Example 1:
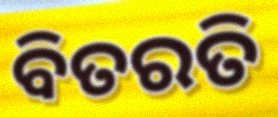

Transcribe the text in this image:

ବିତରତି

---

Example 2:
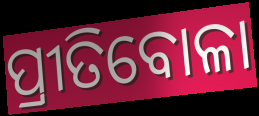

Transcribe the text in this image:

ପ୍ରୀତିବୋଳା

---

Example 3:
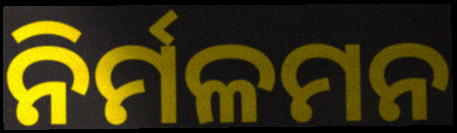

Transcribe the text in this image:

ନିର୍ମଳମନ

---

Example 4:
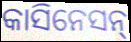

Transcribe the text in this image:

କାସିନେସନ୍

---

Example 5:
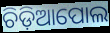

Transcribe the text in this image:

ଚିଡ଼ିଆପୋଲ